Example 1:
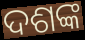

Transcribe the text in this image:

ଦଶଙ୍କ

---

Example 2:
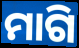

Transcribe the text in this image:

ମାଗି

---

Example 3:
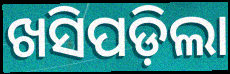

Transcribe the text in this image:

ଖସିପଡ଼ିଲା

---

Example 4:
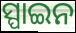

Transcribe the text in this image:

ସ୍ପାଇନ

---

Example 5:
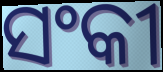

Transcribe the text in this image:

ସଂକୀ